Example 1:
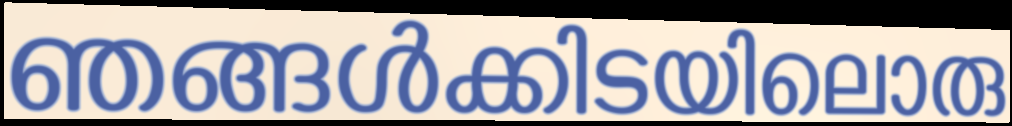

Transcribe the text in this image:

ഞങ്ങൾക്കിടയിലൊരു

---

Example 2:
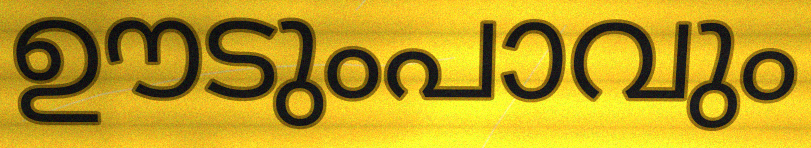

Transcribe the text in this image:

ഊടുംപാവും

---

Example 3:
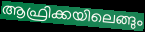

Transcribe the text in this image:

ആഫ്രിക്കയിലെങ്ങും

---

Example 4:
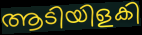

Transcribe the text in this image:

ആടിയിളകി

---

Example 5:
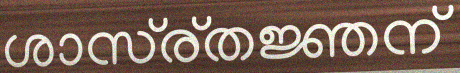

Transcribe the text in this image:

ശാസ്ര്തജ്ഞന്